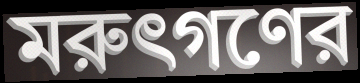
মরুৎগণের